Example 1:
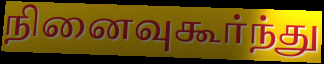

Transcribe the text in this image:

நினைவுகூர்ந்து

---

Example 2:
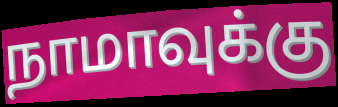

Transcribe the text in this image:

நாமாவுக்கு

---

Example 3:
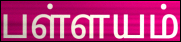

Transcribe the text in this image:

பள்ளயம்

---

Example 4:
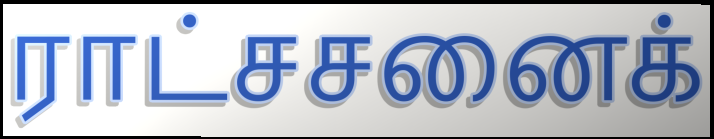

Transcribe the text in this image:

ராட்சசனைக்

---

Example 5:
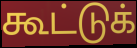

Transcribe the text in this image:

கூட்டுக்